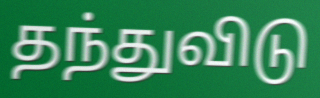
தந்துவிடு